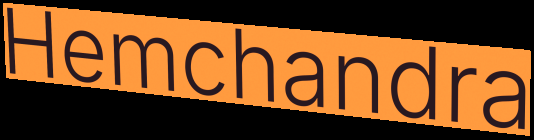
Hemchandra